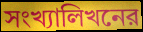
সংখ্যালিখনের